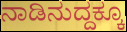
ನಾಡಿನುದ್ದಕ್ಕೂ